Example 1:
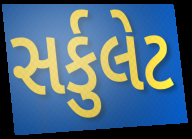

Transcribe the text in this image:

સર્કુલેટ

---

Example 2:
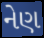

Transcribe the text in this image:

નેણ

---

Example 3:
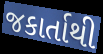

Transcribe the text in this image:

જકાર્તાથી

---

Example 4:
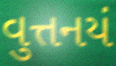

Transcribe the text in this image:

વુત્તનયં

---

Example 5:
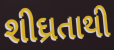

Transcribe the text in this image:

શીઘ્રતાથી